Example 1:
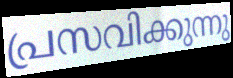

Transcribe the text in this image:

പ്രസവിക്കുന്നു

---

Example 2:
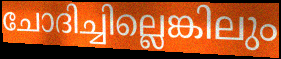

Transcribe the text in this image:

ചോദിച്ചില്ലെങ്കിലും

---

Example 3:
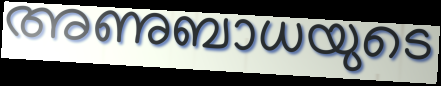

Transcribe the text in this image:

അണുബാധയുടെ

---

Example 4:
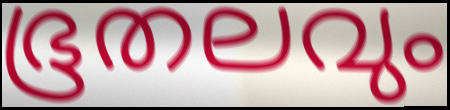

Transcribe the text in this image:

ഭൂതലവും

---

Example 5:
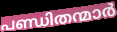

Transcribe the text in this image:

പണ്ഡിതന്മാർ